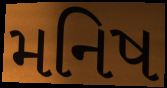
મનિષ